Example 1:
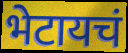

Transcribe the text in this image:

भेटायचं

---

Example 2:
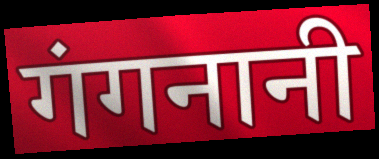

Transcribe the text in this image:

गंगनानी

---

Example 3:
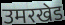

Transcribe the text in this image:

उमरखेड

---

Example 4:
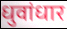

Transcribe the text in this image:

धुवांधार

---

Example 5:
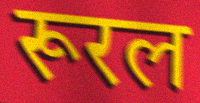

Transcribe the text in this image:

रूरल